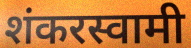
शंकरस्वामी